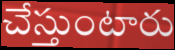
చేస్తుంటారు